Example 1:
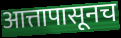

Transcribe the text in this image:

आत्तापासूनच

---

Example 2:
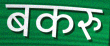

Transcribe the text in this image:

बकरु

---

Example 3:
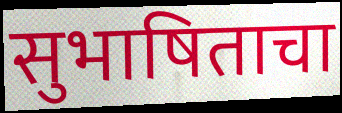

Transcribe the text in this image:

सुभाषिताचा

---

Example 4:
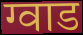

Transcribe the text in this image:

ग्वाड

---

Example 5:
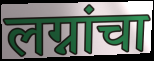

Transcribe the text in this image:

लग्नांचा